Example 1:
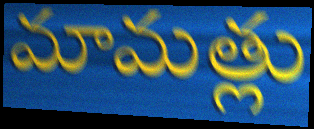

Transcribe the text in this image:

మామత్లు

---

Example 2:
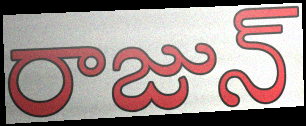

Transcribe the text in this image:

రాజున్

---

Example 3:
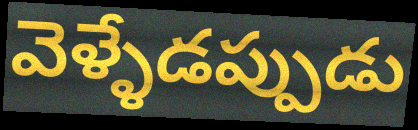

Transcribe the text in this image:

వెళ్ళేడప్పుడు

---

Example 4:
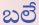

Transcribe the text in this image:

బలే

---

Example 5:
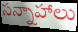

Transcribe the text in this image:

సన్నాహాలు